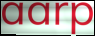
aarp